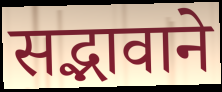
सद्भावाने